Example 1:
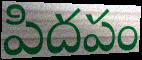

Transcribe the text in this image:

పిదపం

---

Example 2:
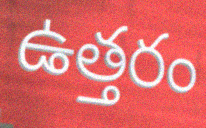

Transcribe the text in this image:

ఉత్తరం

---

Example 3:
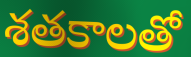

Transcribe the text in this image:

శతకాలతో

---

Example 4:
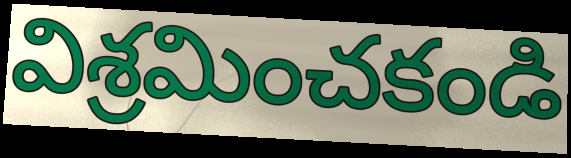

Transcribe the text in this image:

విశ్రమించకండి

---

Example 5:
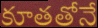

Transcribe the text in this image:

కూతతోనే